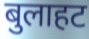
बुलाहट